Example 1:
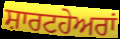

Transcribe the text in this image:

ਸ਼ਾਰਟਹੇਅਰਾਂ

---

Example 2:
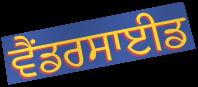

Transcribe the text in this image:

ਵੈਂਡਰਸਾਈਡ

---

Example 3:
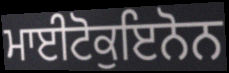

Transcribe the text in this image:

ਮਾਈਟੋਕੁਇਨੋਨ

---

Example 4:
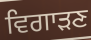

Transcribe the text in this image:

ਵਿਗਾੜਣ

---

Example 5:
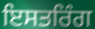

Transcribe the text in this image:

ਇਸਤਰਿੰਗ